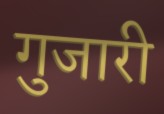
गुजारी